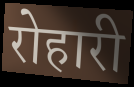
रोहारी